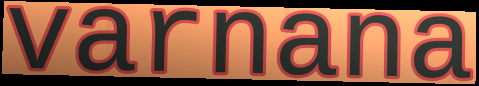
varnana